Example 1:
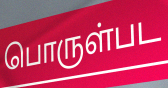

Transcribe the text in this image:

பொருள்பட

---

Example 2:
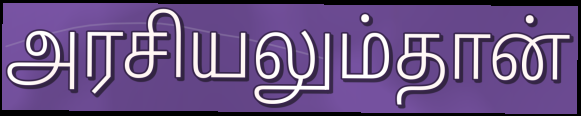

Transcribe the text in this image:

அரசியலும்தான்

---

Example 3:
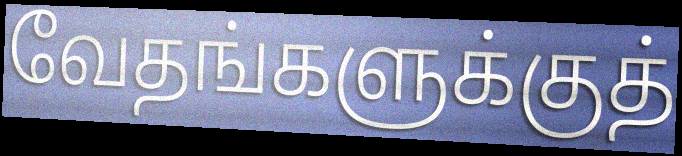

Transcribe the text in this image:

வேதங்களுக்குத்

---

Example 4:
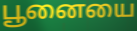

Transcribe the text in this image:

பூனையை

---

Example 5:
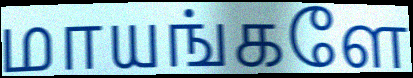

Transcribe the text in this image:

மாயங்களே